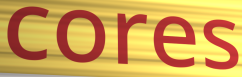
cores